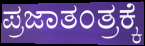
ಪ್ರಜಾತಂತ್ರಕ್ಕೆ